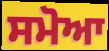
ਸਮੋਆ